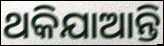
ଥକିଯାଆନ୍ତି